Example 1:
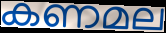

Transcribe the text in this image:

കണമല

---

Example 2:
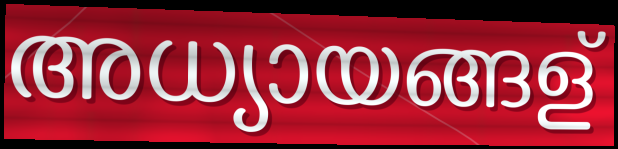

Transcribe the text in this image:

അധ്യായങ്ങള്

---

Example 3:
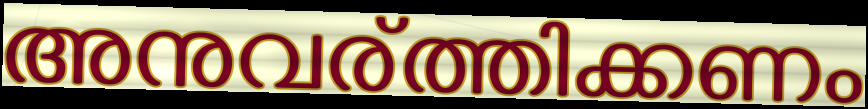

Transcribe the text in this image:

അനുവര്ത്തിക്കണം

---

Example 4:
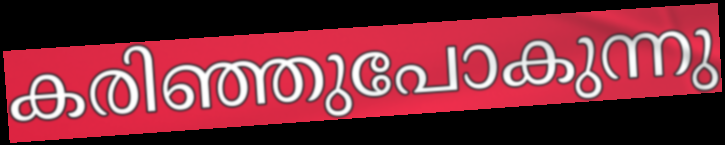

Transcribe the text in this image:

കരിഞ്ഞുപോകുന്നു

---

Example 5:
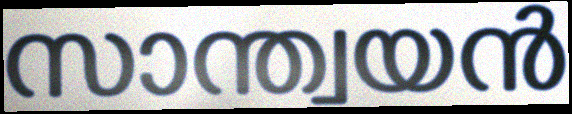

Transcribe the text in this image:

സാന്ത്വയൻ